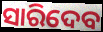
ସାରିଦେବ